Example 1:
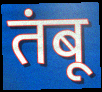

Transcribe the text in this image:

तंबू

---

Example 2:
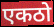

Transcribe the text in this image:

एकठो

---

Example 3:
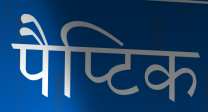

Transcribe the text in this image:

पैप्टिक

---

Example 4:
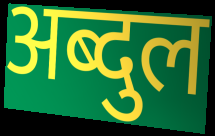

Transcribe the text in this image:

अब्दुल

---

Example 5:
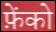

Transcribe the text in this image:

फ़ेंको